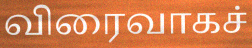
விரைவாகச்